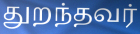
துறந்தவர்